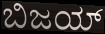
ಬಿಜಯ್